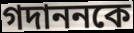
গদাননকে